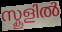
സ്കൂളിൽ